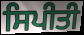
ਸਿਪੀਤੀ